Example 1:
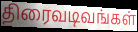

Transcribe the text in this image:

திரைவடிவங்கள்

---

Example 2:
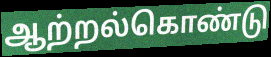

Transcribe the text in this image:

ஆற்றல்கொண்டு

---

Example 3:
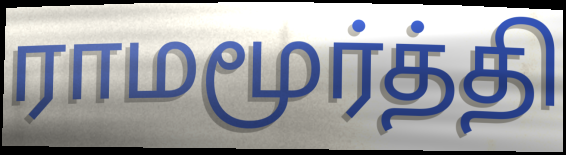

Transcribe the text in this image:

ராமமூர்த்தி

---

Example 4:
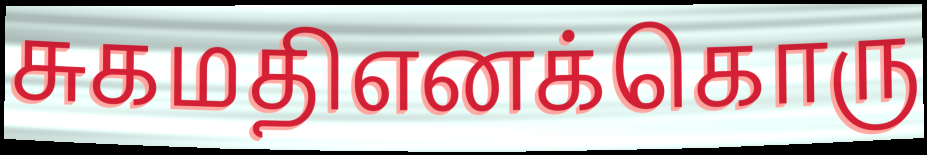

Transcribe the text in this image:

சுகமதிஎனக்கொரு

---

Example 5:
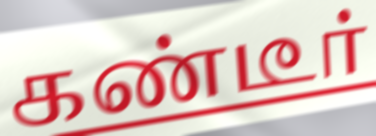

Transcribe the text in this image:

கண்டீர்